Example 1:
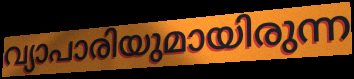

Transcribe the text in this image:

വ്യാപാരിയുമായിരുന്ന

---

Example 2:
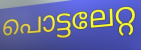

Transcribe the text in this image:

പൊട്ടലേറ്റ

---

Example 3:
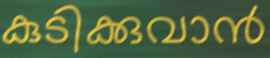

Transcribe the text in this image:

കുടിക്കുവാൻ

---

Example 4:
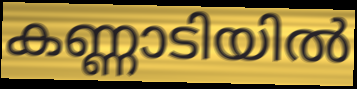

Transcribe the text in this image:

കണ്ണാടിയിൽ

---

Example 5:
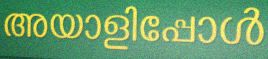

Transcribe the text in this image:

അയാളിപ്പോൾ